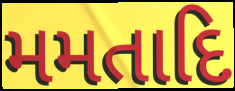
મમતાદિ